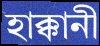
হাক্কানী